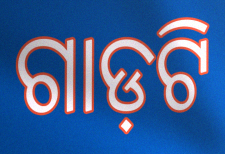
ଗାଡ଼ଟି